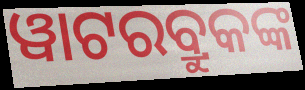
ୱାଟରବ୍ରୁକଙ୍କ